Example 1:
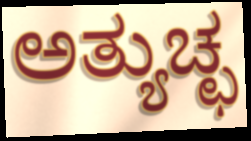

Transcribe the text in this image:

ಅತ್ಯುಚ್ಛ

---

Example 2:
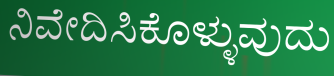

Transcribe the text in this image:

ನಿವೇದಿಸಿಕೊಳ್ಳುವುದು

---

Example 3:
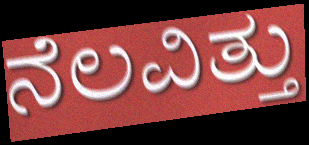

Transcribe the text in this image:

ನೆಲವಿತ್ತು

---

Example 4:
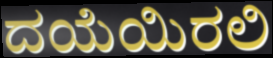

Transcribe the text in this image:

ದಯೆಯಿರಲಿ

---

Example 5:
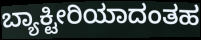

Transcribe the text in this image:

ಬ್ಯಾಕ್ಟೀರಿಯಾದಂತಹ